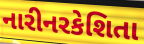
નારીનરકેશિતા